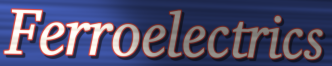
Ferroelectrics